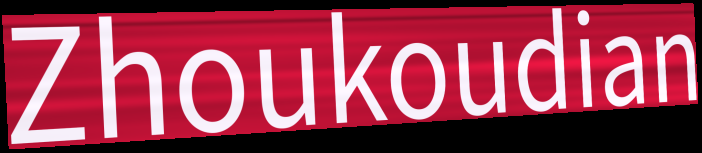
Zhoukoudian